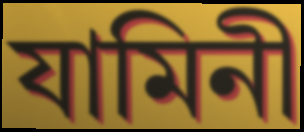
যামিনী